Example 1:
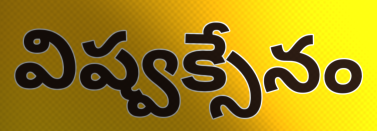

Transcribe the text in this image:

విష్వక్సేనం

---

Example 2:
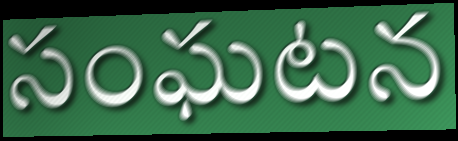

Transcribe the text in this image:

సంఘటన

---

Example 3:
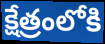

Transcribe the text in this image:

క్షేత్రంలోకి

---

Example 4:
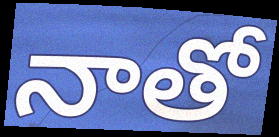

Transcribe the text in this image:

నాతో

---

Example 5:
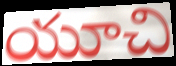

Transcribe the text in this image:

యూచి